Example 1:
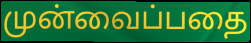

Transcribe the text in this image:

முன்வைப்பதை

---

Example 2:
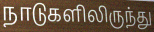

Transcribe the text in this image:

நாடுகளிலிருந்து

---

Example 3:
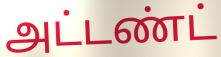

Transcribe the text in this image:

அட்டண்ட்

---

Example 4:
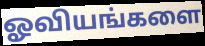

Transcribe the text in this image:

ஓவியங்களை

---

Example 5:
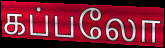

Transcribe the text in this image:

கப்பலோ